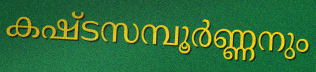
കഷ്ടസമ്പൂർണ്ണനും